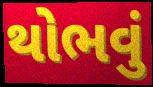
થોભવું